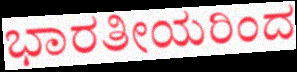
ಭಾರತೀಯರಿಂದ